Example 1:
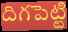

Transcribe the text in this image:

దిగపెట్టి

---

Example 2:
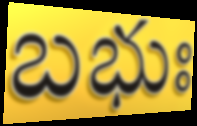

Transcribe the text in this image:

బభుః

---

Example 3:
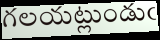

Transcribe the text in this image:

గలయట్లుండుఁ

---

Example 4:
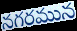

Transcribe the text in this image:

నగరమున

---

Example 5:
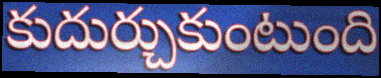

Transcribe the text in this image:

కుదుర్చుకుంటుంది